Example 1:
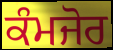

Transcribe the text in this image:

ਕੰਮਜੋਰ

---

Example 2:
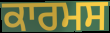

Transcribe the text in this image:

ਕਾਰਮਸ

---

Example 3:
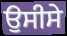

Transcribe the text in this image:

ਉਸੀਸੇ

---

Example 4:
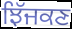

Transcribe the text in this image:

ਝਿੱਜਕਣ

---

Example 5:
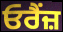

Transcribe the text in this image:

ਓਰੈਂਜ਼